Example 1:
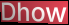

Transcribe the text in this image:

Dhow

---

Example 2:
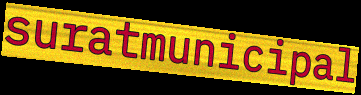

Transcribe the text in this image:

suratmunicipal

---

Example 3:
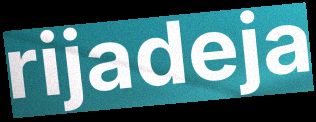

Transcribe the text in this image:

rijadeja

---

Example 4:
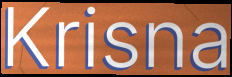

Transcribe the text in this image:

Krisna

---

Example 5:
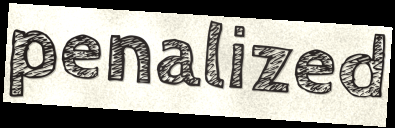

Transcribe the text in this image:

penalized